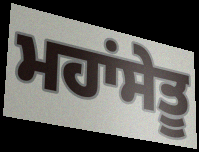
ਮਹਾਂਸੇਤੂ